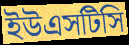
ইউএসটিসি